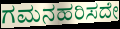
ಗಮನಹರಿಸದೇ